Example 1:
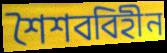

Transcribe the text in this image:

শৈশববিহীন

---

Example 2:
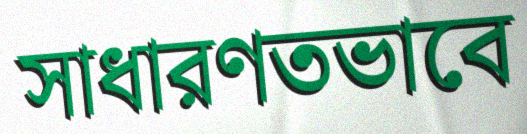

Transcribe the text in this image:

সাধারণতভাবে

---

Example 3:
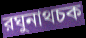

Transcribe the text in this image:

রঘুনাথচক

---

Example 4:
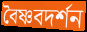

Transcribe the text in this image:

বৈষ্ণবদর্শন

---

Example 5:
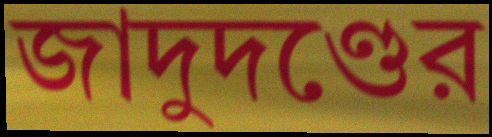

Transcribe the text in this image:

জাদুদণ্ডের